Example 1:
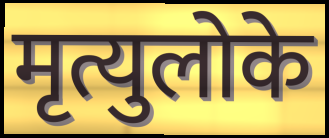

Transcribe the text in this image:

मृत्युलोके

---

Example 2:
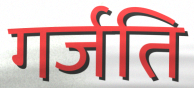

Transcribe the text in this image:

गर्जति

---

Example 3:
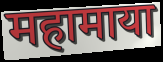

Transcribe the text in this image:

महामाया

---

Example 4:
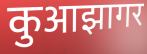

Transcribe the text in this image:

कुआझागर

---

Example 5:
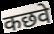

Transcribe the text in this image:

कछवे